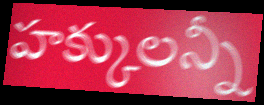
హక్కులన్నీ